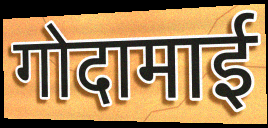
गोदामाई